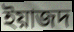
ইয়াজদ